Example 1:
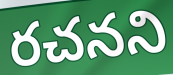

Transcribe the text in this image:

రచనని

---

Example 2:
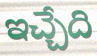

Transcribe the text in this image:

ఇచ్చేది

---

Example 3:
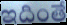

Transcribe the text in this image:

ఇదింతే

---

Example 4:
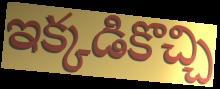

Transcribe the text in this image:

ఇక్కడికొచ్చి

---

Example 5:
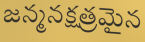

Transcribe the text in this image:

జన్మనక్షత్రమైన